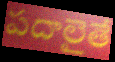
పదాలైతే